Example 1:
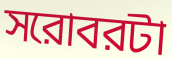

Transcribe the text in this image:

সরোবরটা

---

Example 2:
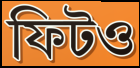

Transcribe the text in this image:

ফিটও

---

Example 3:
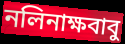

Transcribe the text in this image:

নলিনাক্ষবাবু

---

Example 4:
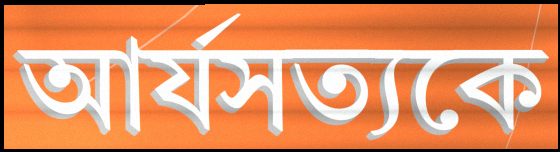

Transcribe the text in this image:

আর্যসত্যকে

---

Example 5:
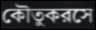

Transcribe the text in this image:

কৌতুকরসে